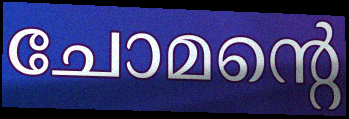
ചോമന്റെ